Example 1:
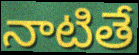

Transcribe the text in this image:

నాటితే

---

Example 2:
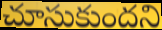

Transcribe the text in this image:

చూసుకుందని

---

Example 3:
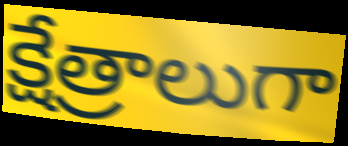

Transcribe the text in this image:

క్షేత్రాలుగా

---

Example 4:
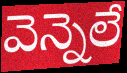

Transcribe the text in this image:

వెన్నెలే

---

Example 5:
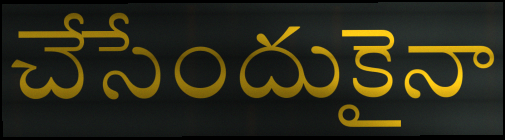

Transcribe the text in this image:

చేసేందుకైనా